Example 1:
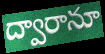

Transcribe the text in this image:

ద్వారానూ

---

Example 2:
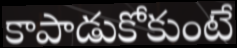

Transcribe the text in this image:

కాపాడుకోకుంటే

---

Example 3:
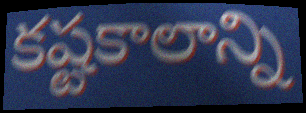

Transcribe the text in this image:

కష్టకాలాన్ని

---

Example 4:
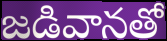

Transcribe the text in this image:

జడివానతో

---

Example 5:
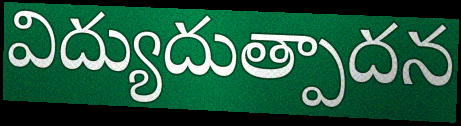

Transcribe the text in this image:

విద్యుదుత్పాదన